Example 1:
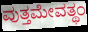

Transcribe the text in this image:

ವುತ್ತಮೇವತ್ಥಂ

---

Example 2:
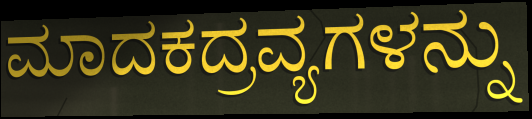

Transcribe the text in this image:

ಮಾದಕದ್ರವ್ಯಗಳನ್ನು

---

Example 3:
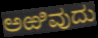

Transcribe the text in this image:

ಅಱಿವುದು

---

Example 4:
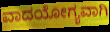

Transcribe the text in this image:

ವಾದಯೋಗ್ಯವಾಗಿ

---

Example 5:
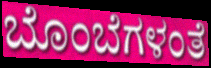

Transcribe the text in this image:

ಬೊಂಬೆಗಳಂತೆ